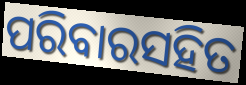
ପରିବାରସହିତ